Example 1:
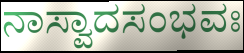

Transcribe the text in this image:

ನಾಸ್ವಾದಸಂಭವಃ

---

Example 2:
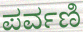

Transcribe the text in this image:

ಪರ್ವಣಿ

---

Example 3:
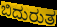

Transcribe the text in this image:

ಬಿದುರುತ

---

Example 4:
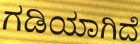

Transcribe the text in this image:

ಗಡಿಯಾಗಿದೆ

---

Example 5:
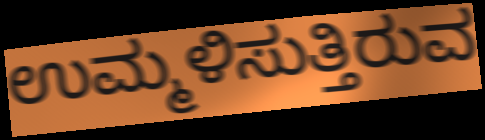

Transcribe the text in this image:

ಉಮ್ಮಳಿಸುತ್ತಿರುವ